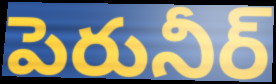
పెరునీర్